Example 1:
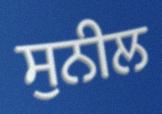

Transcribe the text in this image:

ਸੁਨੀਲ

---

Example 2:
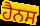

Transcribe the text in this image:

ਹੈਨਸ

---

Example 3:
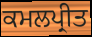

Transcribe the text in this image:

ਕਮਲਪ੍ਰੀਤ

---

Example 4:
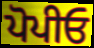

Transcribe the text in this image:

ਪੋਪੀਓ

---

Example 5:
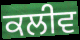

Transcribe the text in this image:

ਕਲੀਵ